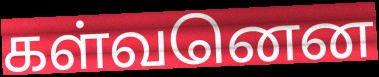
கள்வனென